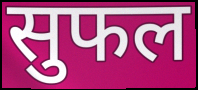
सुफल